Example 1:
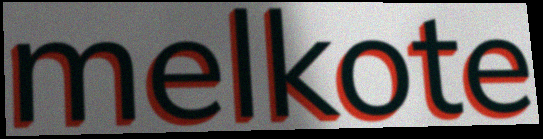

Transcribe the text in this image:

melkote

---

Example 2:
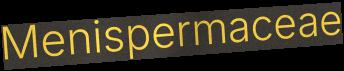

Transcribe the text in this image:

Menispermaceae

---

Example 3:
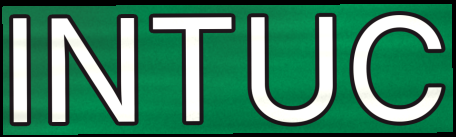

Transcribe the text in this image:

INTUC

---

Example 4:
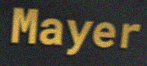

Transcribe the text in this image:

Mayer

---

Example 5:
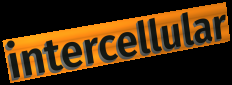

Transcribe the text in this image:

intercellular